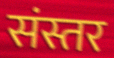
संस्तर